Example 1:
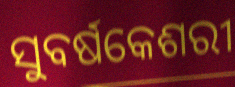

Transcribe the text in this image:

ସୁବର୍ଷକେଶରୀ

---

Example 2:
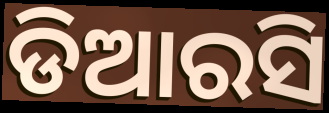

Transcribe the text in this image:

ଡିଆରସି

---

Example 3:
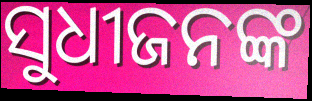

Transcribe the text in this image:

ସୁଧୀଜନଙ୍କ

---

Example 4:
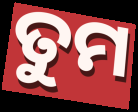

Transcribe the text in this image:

ତୁମ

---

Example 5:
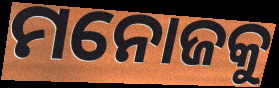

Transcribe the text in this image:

ମନୋଜକୁ